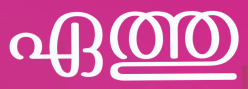
ഏത്തു